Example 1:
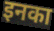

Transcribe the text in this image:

इनका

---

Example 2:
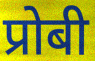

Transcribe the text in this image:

प्रोबी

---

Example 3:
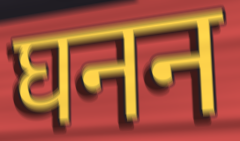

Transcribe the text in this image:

घनन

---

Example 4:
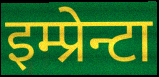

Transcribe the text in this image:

इम्प्रेन्टा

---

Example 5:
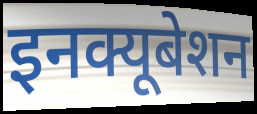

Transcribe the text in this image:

इनक्यूबेशन